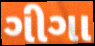
ગીગા